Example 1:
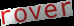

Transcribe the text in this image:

rover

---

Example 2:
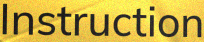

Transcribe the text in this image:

Instruction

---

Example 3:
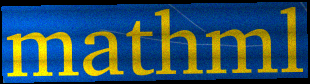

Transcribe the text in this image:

mathml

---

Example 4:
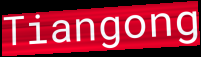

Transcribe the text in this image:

Tiangong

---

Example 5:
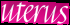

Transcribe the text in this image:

uterus